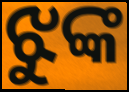
ଝୁଙ୍କ